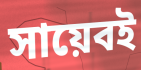
সায়েবই